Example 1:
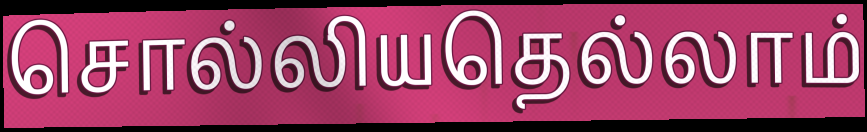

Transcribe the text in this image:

சொல்லியதெல்லாம்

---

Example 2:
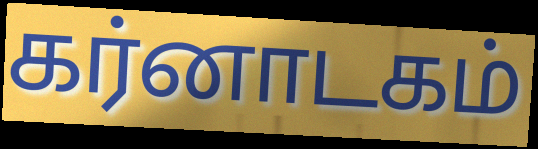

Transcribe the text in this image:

கர்னாடகம்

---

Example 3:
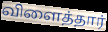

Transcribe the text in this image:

விளைத்தார்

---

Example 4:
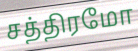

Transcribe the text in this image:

சத்திரமோ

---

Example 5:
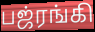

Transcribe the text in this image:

பஜ்ரங்கி